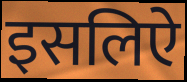
इसलिऐ